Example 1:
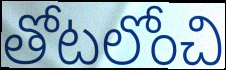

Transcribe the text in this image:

తోటలోంచి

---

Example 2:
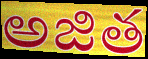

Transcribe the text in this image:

అజిత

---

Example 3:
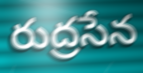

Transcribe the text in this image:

రుద్రసేన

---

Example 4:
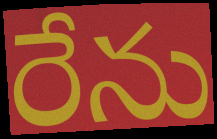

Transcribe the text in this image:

రేను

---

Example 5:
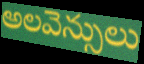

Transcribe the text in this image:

అలవెన్సులు